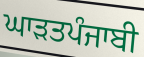
ਘਾੜਤਪੰਜਾਬੀ